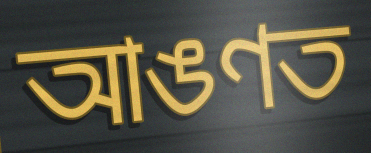
আঙণত